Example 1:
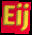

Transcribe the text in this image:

Eij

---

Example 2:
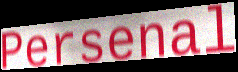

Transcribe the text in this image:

Persenal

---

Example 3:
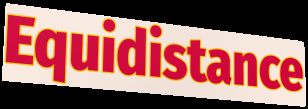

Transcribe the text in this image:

Equidistance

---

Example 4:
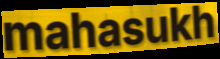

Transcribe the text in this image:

mahasukh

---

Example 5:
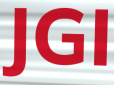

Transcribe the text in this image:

JGI